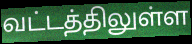
வட்டத்திலுள்ள